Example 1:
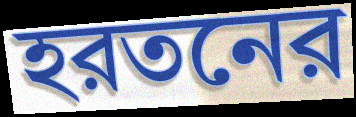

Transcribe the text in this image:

হরতনের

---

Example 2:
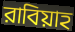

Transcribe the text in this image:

রাবিয়াহ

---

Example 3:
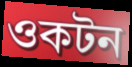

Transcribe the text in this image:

ওকটন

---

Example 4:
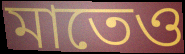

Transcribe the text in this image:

মাতেও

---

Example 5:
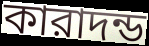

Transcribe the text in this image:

কারাদন্ড